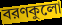
বরণকুলো